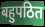
बहुपठित